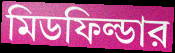
মিডফিল্ডার